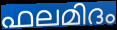
ഫലമിദം